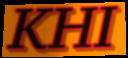
KHI